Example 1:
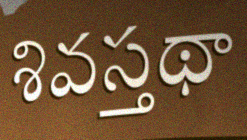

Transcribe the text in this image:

శివస్తథా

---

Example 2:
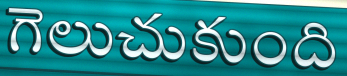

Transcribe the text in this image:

గెలుచుకుంది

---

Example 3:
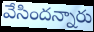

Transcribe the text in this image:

వేసిందన్నారు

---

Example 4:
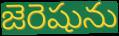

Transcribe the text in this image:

జెరెషును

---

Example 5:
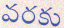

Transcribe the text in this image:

వరకు